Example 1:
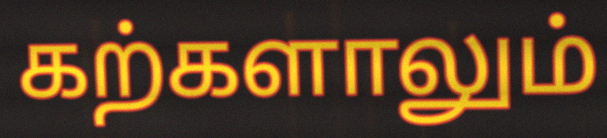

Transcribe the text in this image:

கற்களாலும்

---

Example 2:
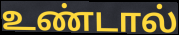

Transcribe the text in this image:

உண்டால்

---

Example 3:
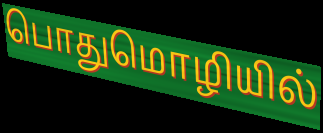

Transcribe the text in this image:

பொதுமொழியில்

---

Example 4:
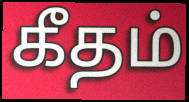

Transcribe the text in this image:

கீதம்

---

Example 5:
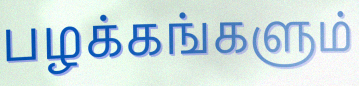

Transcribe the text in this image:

பழக்கங்களும்